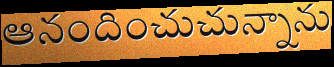
ఆనందించుచున్నాను